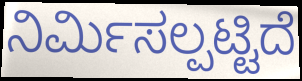
ನಿರ್ಮಿಸಲ್ಪಟ್ಟಿದೆ